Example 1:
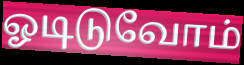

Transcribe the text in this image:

ஓடிடுவோம்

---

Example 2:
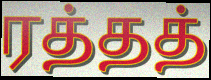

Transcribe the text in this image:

ரத்தத்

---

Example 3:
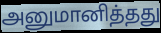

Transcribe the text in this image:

அனுமானித்தது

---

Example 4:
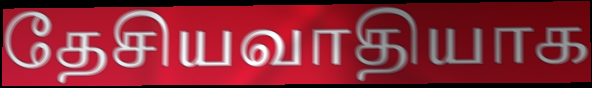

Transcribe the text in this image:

தேசியவாதியாக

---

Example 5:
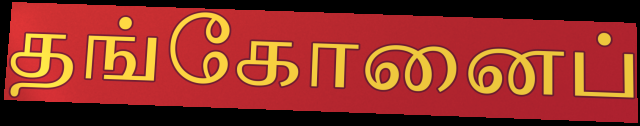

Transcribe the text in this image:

தங்கோனைப்